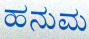
ಹನುಮ